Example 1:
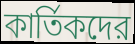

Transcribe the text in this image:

কার্তিকদের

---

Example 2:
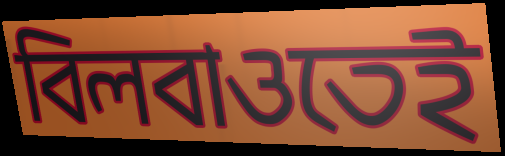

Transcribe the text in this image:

বিলবাওতেই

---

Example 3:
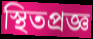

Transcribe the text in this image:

স্থিতপ্রজ্ঞ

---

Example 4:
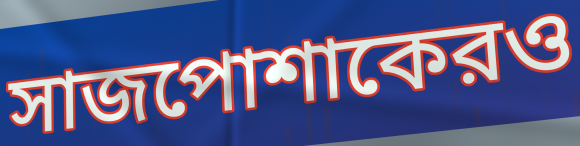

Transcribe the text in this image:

সাজপোশাকেরও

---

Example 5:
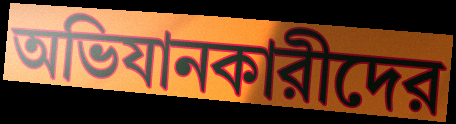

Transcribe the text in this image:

অভিযানকারীদের